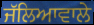
ਜੱਲਿਆਵਾਲੇ